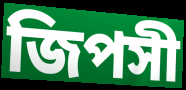
জিপসী